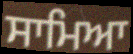
ਸਾਮਿਆ